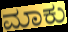
ಮಾಕು